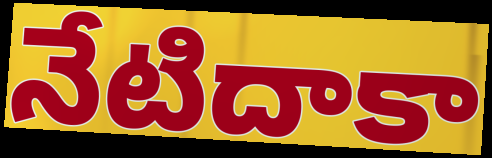
నేటిదాకా